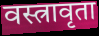
वस्त्रावृता